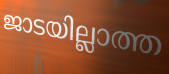
ജാടയില്ലാത്ത